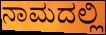
ನಾಮದಲ್ಲಿ